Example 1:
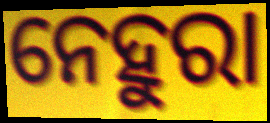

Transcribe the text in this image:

ନେହୁରା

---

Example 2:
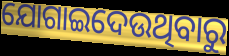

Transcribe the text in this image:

ଯୋଗାଇଦେଉଥିବାରୁ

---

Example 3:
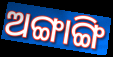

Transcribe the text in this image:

ଅଙ୍ଗାଙ୍ଗି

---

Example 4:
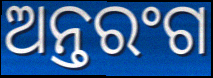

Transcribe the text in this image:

ଅନ୍ତରଂଗ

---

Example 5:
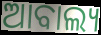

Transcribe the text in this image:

ଆବାଲ୍ୟ